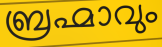
ബ്രഹ്മാവും